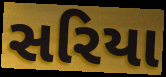
સરિયા